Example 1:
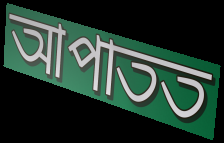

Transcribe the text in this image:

আপাতত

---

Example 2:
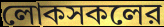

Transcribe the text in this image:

লোকসকলের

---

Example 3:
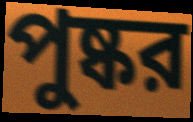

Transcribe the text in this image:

পুষ্কর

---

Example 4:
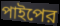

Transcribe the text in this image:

পাইপের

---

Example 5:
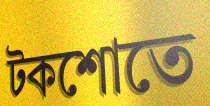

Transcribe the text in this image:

টকশোতে